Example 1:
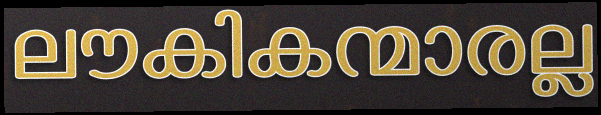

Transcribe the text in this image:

ലൗകികന്മാരല്ല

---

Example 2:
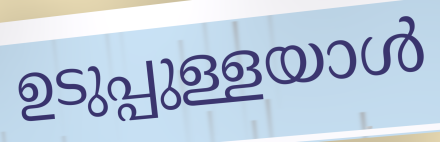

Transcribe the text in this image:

ഉടുപ്പുള്ളയാൾ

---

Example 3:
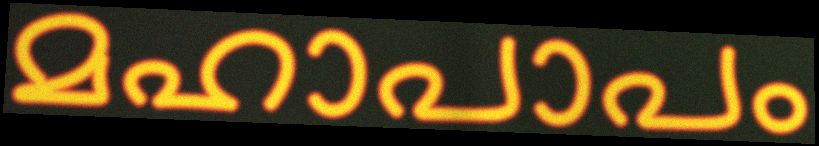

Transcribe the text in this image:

മഹാപാപം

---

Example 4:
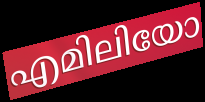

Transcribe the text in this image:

എമിലിയോ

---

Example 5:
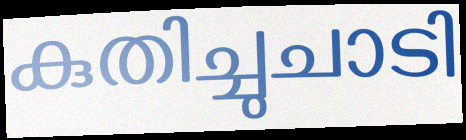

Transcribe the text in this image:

കുതിച്ചുചാടി